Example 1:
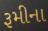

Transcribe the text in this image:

રૂમીના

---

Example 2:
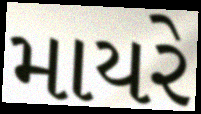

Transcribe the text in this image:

માયરે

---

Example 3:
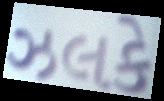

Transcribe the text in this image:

ઝલકે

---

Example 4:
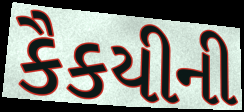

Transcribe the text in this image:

કૈકયીની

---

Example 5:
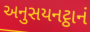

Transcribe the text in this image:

અનુસયનટ્ઠાનં